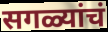
सगळ्यांचं